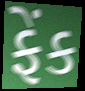
ફેંક